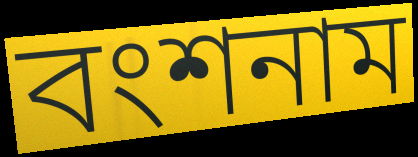
বংশনাম